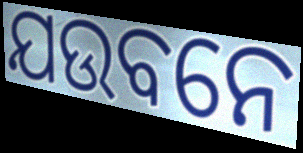
ଯଉବନେ